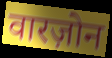
वारज़ोन